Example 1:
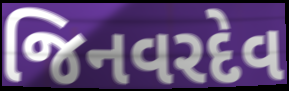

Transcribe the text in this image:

જિનવરદેવ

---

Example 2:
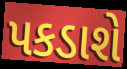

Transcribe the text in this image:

પકડાશે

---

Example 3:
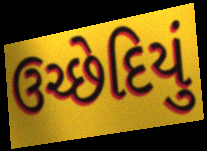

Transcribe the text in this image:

ઉચ્છેદિયું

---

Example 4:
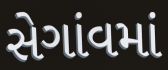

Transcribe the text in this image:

સેગાંવમાં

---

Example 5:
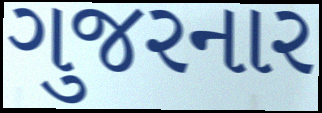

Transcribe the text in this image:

ગુજરનાર